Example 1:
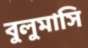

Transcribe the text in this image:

বুলুমাসি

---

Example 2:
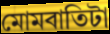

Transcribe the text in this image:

মোমবাতিটা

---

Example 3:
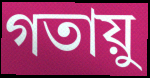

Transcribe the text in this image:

গতায়ু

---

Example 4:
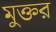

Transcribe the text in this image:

মুক্তর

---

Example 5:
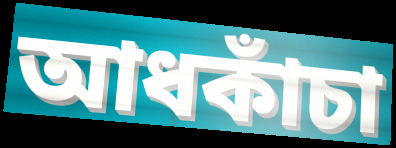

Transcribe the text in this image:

আধকাঁচা